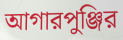
আগারপুঞ্জির